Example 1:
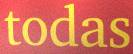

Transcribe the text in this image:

todas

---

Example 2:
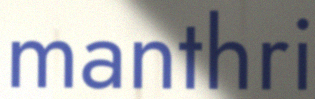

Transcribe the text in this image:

manthri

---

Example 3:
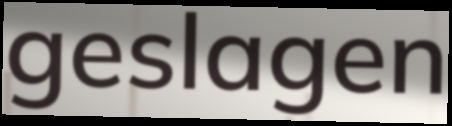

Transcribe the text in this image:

geslagen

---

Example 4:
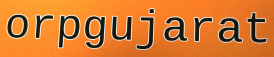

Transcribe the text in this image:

orpgujarat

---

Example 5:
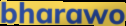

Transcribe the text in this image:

bharawo